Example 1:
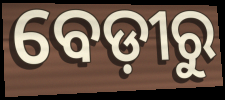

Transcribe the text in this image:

ବେଡ଼ୀରୁ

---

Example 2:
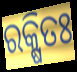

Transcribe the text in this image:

ରକ୍ଷିତଃ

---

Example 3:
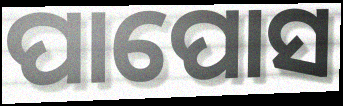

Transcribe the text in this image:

ପାପୋସ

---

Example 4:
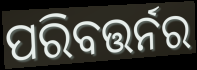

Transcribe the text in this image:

ପରିବତ୍ତର୍ନର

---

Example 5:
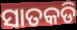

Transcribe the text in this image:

ସାତକଡି